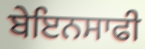
ਬੇਇਨਸਾਫੀ